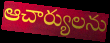
ఆచార్యులను